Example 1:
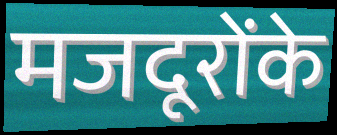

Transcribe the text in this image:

मजदूरोंके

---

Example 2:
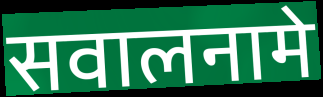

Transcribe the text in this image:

सवालनामे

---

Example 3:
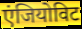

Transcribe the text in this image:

एंजियोविट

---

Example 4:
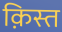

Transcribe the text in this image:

क़िस्त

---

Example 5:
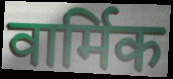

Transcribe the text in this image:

वार्मिक